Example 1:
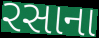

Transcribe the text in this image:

રસાના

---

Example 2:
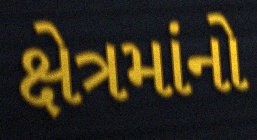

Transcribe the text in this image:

ક્ષેત્રમાંનો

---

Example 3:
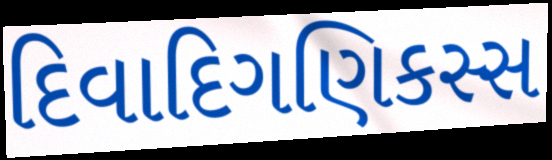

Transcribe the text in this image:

દિવાદિગણિકસ્સ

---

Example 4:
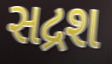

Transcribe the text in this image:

સદ્રશ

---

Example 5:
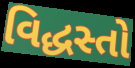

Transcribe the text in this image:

વિદ્ધસ્તો